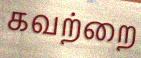
கவற்றை